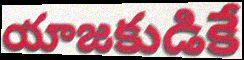
యాజకుడికే